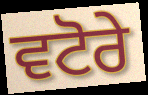
ਵਟੋਰੇ